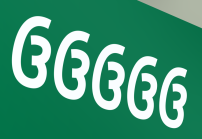
ઉઉઉઉઉ